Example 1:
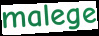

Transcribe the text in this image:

malege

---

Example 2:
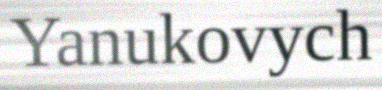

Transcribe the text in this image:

Yanukovych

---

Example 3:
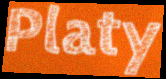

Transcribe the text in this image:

Platy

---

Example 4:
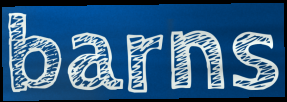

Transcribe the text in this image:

barns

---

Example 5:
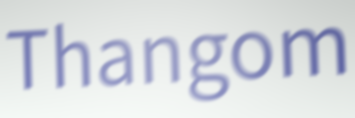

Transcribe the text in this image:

Thangom